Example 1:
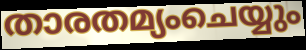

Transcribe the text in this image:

താരതമ്യംചെയ്യും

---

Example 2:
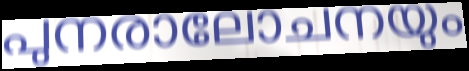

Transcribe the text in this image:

പുനരാലോചനയും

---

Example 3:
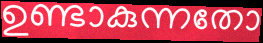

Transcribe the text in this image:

ഉണ്ടാകുന്നതോ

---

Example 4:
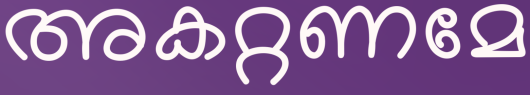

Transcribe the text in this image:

അകറ്റണമേ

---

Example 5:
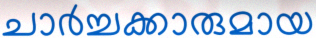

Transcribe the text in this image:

ചാർച്ചക്കാരുമായ